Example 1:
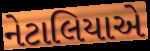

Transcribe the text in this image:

નેટાલિયાએ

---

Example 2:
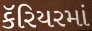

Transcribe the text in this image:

કૅરિયરમાં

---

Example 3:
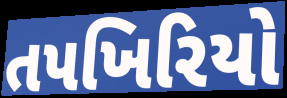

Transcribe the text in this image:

તપખિરિયો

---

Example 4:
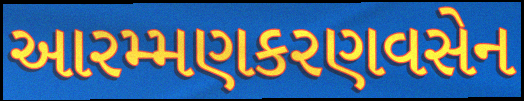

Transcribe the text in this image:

આરમ્મણકરણવસેન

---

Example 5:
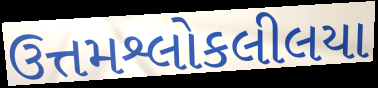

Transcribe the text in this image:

ઉત્તમશ્લોકલીલયા